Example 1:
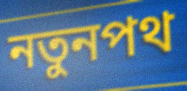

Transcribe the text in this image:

নতুনপথ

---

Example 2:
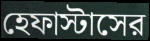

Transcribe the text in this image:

হেফাস্টাসের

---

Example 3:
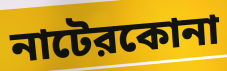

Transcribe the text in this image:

নাটেরকোনা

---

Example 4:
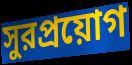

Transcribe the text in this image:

সুরপ্রয়োগ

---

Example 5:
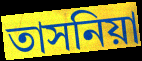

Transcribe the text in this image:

তাসনিয়া